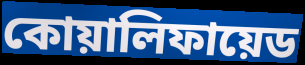
কোয়ালিফায়েড